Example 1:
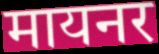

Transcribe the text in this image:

मायनर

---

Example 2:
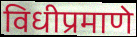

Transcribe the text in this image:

विधीप्रमाणे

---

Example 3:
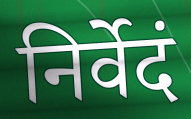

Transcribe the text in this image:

निर्वेदं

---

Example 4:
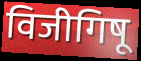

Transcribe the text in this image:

विजीगिषू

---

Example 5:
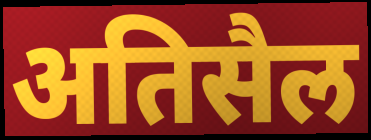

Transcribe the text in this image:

अतिसैल